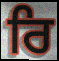
ਰਿ